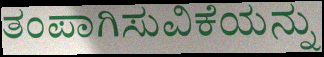
ತಂಪಾಗಿಸುವಿಕೆಯನ್ನು